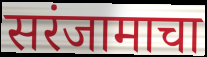
सरंजामाचा